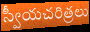
స్వీయచరిత్రలు